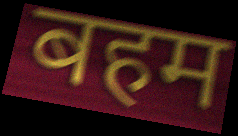
बहम